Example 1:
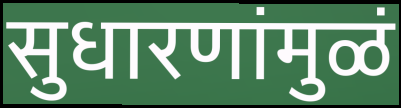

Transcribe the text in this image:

सुधारणांमुळं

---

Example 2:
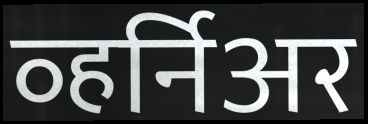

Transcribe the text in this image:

व्हर्निअर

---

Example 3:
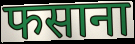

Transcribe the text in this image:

फसाना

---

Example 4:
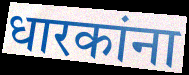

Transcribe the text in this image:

धारकांना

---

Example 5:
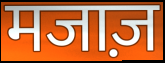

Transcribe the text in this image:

मजाज़